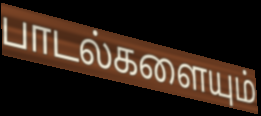
பாடல்களையும்